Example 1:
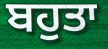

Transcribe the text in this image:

ਬਹੁਤਾ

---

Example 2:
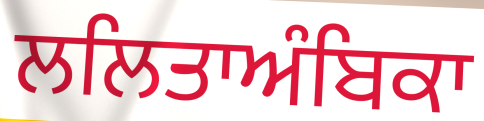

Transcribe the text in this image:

ਲਲਿਤਾਅੰਬਿਕਾ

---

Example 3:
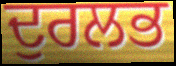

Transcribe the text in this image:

ਦੁਰਲਭ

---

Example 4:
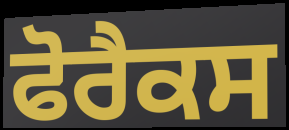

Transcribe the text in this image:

ਫੋਰੈਕਸ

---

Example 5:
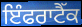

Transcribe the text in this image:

ਇੰਫਰਾਟੈੱਕ